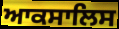
ਆਕਸਾਲਿਸ